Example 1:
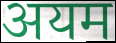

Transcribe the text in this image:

अयम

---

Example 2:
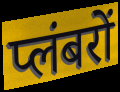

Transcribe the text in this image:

प्लंबरों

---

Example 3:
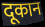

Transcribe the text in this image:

दूकान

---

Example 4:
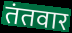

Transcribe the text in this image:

तंतवार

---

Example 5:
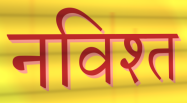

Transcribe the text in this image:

नविश्त